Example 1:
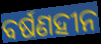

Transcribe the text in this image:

ବର୍ଷଣହୀନ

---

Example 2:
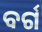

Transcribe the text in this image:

ବର୍ଗ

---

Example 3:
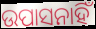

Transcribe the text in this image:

ଉପାସନାହିଁ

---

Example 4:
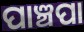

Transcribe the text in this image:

ପାଞ୍ଚପା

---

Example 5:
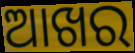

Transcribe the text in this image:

ଆଖର